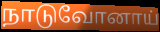
நாடுவோனாய்